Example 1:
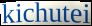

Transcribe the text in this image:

kichutei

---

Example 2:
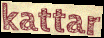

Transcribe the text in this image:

kattar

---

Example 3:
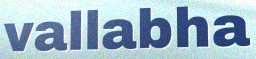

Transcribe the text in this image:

vallabha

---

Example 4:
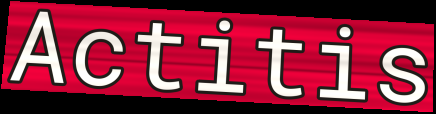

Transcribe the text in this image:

Actitis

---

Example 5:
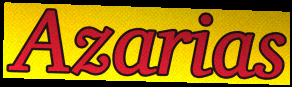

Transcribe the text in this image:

Azarias